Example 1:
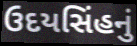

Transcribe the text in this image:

ઉદયસિંહનું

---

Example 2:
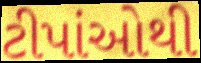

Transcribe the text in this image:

ટીપાંઓથી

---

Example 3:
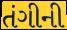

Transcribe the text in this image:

તંગીની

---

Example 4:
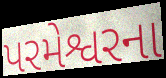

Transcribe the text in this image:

પરમેશ્વરના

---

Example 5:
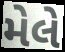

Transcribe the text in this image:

મેલે